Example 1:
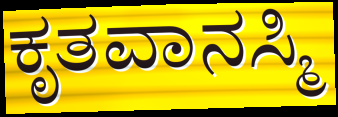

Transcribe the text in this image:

ಕೃತವಾನಸ್ಮಿ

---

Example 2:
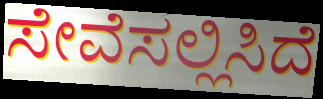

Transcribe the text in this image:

ಸೇವೆಸಲ್ಲಿಸಿದೆ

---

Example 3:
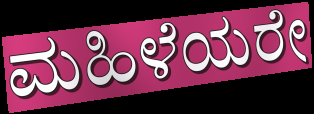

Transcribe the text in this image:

ಮಹಿಳೆಯರೇ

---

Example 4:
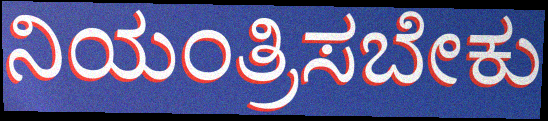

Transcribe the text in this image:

ನಿಯಂತ್ರಿಸಬೇಕು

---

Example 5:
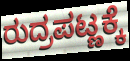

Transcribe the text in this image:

ರುದ್ರಪಟ್ಣಕ್ಕೆ